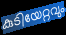
കുടിയേറ്റവും